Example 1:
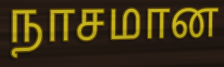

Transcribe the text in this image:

நாசமான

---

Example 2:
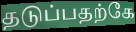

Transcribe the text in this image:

தடுப்பதற்கே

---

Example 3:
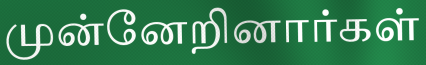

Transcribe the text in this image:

முன்னேறினார்கள்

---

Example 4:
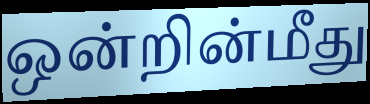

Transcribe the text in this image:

ஒன்றின்மீது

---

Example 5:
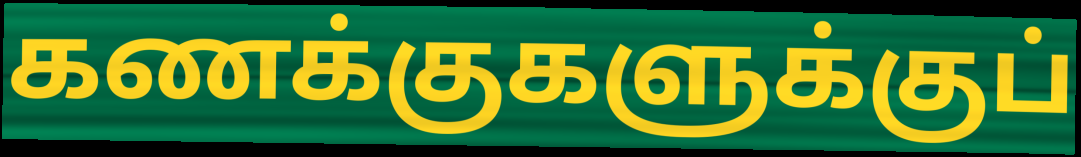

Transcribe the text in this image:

கணக்குகளுக்குப்